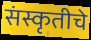
संस्कृतीचे